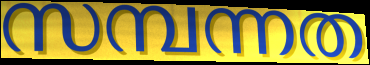
സമ്പന്നത